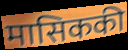
मासिककी